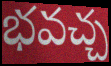
భవచ్చ